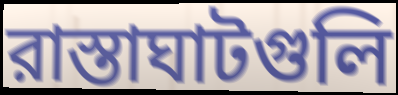
রাস্তাঘাটগুলি